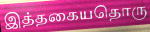
இத்தகையதொரு